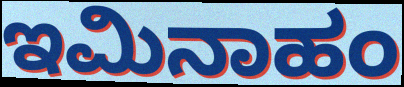
ಇಮಿನಾಹಂ